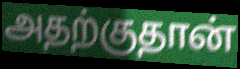
அதற்குதான்